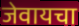
जेवायचा